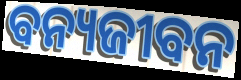
ବନ୍ୟଜୀବନ